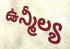
ఉన్మీల్య